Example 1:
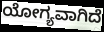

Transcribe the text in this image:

ಯೋಗ್ಯವಾಗಿದೆ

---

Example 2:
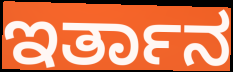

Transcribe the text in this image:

ಇರ್ತಾನ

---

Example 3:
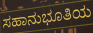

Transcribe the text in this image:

ಸಹಾನುಭೂತಿಯ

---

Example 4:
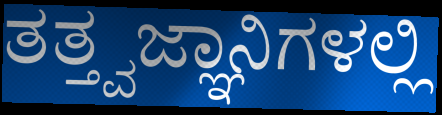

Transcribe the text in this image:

ತತ್ತ್ವಜ್ಞಾನಿಗಳಲ್ಲಿ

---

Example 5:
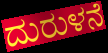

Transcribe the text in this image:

ದುರುಳನೆ